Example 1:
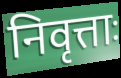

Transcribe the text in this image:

निवृत्ताः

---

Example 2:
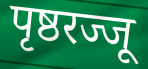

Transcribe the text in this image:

पृष्ठरज्जू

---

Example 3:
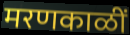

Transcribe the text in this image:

मरणकाळीं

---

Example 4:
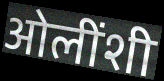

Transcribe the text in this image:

ओलींशी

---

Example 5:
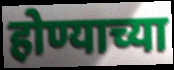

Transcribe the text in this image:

होण्याच्या